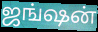
ஜங்ஷன்